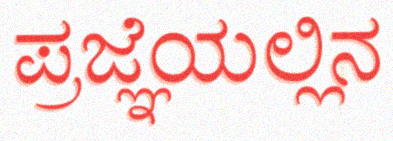
ಪ್ರಜ್ಞೆಯಲ್ಲಿನ